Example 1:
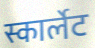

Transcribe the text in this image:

स्कार्लेट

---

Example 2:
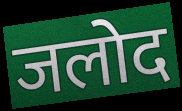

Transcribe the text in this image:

जलोद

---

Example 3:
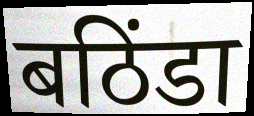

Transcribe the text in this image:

बठिंडा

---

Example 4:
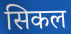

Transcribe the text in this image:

सिकल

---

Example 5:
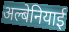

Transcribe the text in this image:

अल्बेनियाई